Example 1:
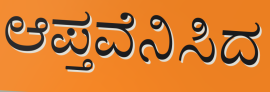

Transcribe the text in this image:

ಆಪ್ತವೆನಿಸಿದ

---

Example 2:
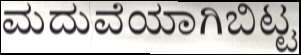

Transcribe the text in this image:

ಮದುವೆಯಾಗಿಬಿಟ್ಟ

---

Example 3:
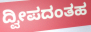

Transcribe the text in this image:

ದ್ವೀಪದಂತಹ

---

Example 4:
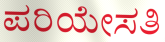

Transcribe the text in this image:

ಪರಿಯೇಸತಿ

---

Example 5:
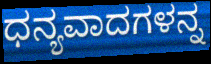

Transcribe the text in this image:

ಧನ್ಯವಾದಗಳನ್ನ